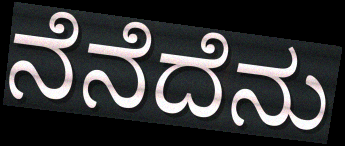
ನೆನೆದೆನು